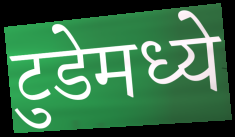
टुडेमध्ये